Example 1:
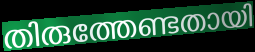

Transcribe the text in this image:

തിരുത്തേണ്ടതായി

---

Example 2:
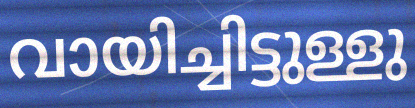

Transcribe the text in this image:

വായിച്ചിട്ടുള്ളു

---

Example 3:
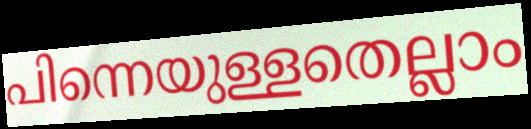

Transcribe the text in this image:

പിന്നെയുള്ളതെല്ലാം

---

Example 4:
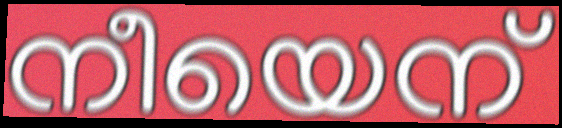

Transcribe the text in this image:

നീയെന്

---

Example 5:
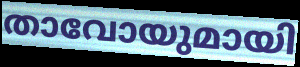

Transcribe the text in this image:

താവോയുമായി